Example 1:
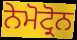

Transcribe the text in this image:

ਨੇਮੋਟ੍ਰੋਨ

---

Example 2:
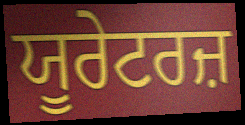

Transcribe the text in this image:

ਯੂਰੇਟਰਜ਼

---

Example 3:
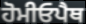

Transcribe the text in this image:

ਹੋਮੀਓਪੈਥ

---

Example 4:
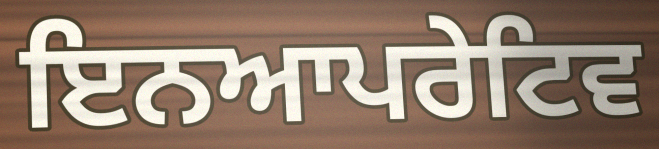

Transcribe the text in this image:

ਇਨਆਪਰੇਟਿਵ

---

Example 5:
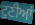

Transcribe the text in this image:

ਟੁਣੀਆਂ